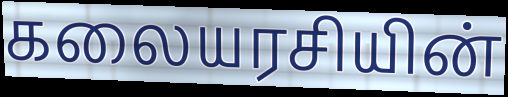
கலையரசியின்